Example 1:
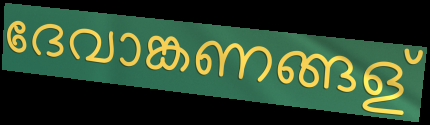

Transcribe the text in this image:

ദേവാങ്കണങ്ങള്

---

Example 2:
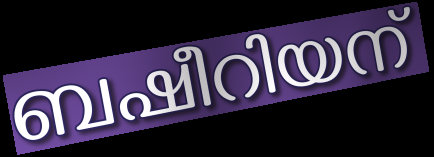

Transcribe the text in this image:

ബഷീറിയന്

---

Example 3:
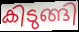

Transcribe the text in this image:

കിടുങ്ങി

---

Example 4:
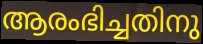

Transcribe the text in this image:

ആരംഭിച്ചതിനു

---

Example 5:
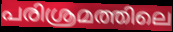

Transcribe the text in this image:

പരിശ്രമത്തിലെ